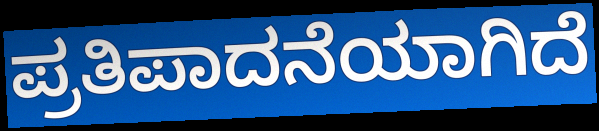
ಪ್ರತಿಪಾದನೆಯಾಗಿದೆ